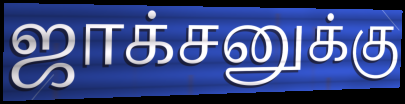
ஜாக்சனுக்கு